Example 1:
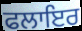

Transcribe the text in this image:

ਫਲਾਇਰ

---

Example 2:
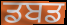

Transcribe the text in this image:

ਡਬਡ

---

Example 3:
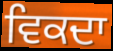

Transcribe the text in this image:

ਵਿਕਦਾ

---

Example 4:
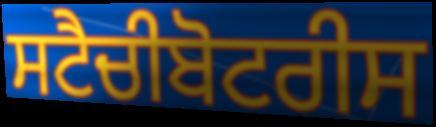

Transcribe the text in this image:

ਸਟੈਚੀਬੋਟਰੀਸ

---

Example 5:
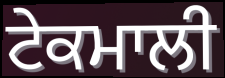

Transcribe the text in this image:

ਟੇਕਮਾਲੀ